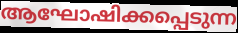
ആഘോഷിക്കപ്പെടുന്ന